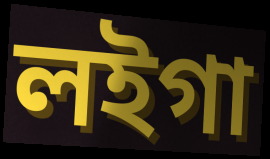
লইগা